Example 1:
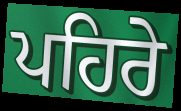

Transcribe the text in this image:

ਪਹਿਰੇ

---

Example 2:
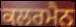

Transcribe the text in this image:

ਕਲਰਮੈਨ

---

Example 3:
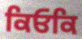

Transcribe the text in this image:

ਕਿਓਕਿ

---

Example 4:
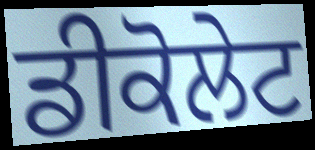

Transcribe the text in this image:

ਡੀਕੋਲੇਟ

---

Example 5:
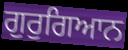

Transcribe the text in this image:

ਗੁਰੁਗਿਆਨ